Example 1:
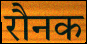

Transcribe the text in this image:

रौनक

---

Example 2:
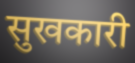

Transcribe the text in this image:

सुखकारी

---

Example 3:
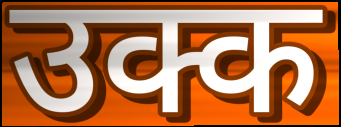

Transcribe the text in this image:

उक्क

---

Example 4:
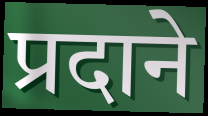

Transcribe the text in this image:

प्रदाने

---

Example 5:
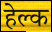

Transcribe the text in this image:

हेल्क